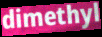
dimethyl